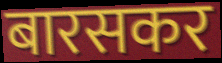
बारसकर